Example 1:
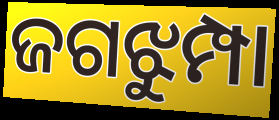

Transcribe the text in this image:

ଜଗଝୁମ୍ପା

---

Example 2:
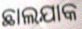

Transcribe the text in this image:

ଛାଲଯାକ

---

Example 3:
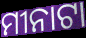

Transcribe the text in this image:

ମୀନାଟା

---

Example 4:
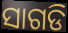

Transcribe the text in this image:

ସାଗଡି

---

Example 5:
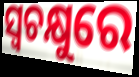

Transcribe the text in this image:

ସ୍ୱଚକ୍ଷୁରେ